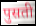
पुसती